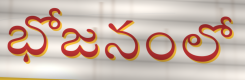
భోజనంలో